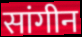
सांगीन